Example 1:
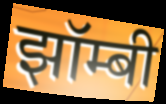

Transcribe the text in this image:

झॉम्बी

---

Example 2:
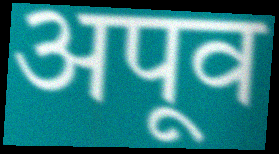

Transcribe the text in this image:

अपूव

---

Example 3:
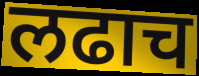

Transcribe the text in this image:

लढाच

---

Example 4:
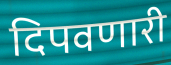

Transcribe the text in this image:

दिपवणारी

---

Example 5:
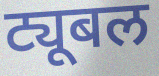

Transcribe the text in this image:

ट्यूबल